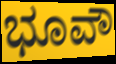
ಭೂವೌ